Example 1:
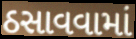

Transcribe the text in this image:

ઠસાવવામાં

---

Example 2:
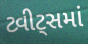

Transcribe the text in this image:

ટ્વીટ્સમાં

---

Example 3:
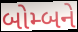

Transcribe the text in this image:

બોમ્બને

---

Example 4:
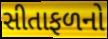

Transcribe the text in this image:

સીતાફળનો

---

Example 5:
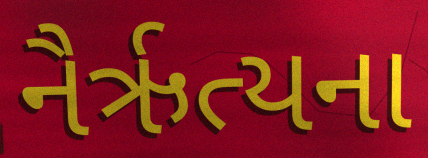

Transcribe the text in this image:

નૈર્ઋત્યના